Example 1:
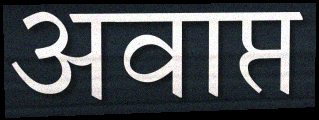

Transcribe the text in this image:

अवाप्त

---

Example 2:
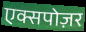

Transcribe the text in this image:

एक्सपोज़र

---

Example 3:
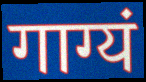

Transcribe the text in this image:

गाग्यं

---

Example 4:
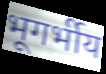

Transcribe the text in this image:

भूगर्भीय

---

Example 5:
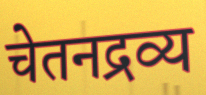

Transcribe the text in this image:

चेतनद्रव्य